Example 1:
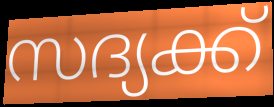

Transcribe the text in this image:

സദ്യക്ക്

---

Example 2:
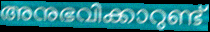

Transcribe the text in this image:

അനുഭവിക്കാറുണ്ട്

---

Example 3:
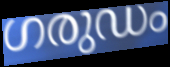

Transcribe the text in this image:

ഗരുഡം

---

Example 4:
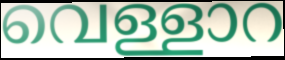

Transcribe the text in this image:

വെള്ളാറ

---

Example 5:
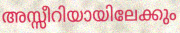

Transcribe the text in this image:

അസ്സീറിയായിലേക്കും